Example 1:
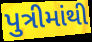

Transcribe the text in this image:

પુત્રીમાંથી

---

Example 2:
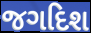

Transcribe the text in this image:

જગદિશ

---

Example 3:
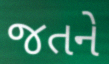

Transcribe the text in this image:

જતને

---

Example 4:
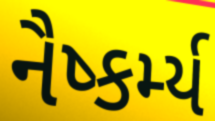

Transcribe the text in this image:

નૈષ્કર્મ્ય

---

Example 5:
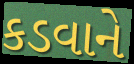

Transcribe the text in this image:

કડવાને